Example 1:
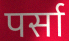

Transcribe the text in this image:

पर्सा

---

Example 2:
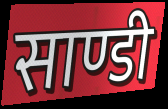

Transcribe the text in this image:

साण्डी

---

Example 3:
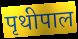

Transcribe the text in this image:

पृथीपाल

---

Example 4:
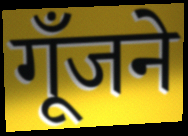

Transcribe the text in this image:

गूँजने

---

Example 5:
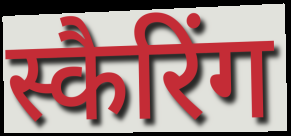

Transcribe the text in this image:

स्कैरिंग